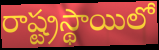
రాష్ట్రస్థాయిలో